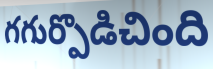
గగుర్పొడిచింది